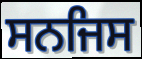
ਸਨਜਿਸ